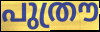
പുത്രൗ